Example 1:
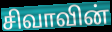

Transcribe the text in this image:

சிவாவின்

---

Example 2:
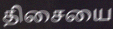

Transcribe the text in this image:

திசையை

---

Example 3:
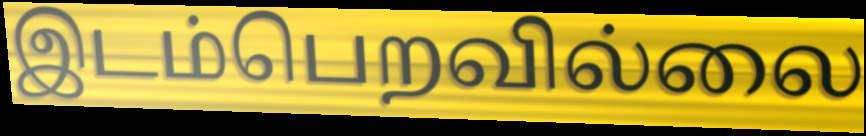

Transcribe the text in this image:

இடம்பெறவில்லை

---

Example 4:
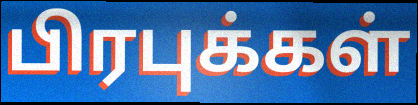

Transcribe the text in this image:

பிரபுக்கள்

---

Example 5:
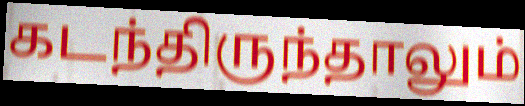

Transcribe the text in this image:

கடந்திருந்தாலும்